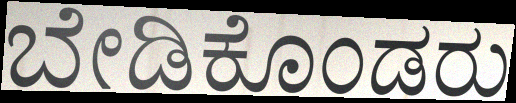
ಬೇಡಿಕೊಂಡರು